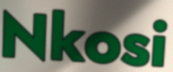
Nkosi